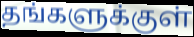
தங்களுக்குள்